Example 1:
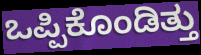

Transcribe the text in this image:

ಒಪ್ಪಿಕೊಂಡಿತ್ತು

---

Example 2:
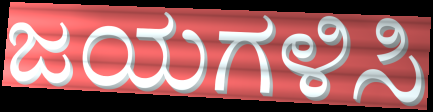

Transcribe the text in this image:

ಜಯಗಳಿಸಿ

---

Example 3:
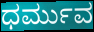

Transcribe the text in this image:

ಧರ್ಮುವ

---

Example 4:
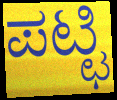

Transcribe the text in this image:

ಪಟ್ಟಿ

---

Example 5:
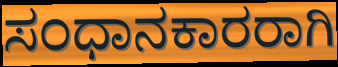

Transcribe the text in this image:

ಸಂಧಾನಕಾರರಾಗಿ